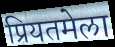
प्रियतमेला